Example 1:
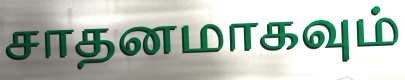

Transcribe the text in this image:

சாதனமாகவும்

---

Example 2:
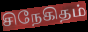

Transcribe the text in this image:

சிநேகிதம்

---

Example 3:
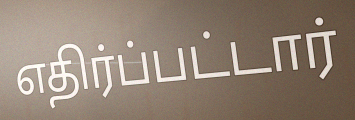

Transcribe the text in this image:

எதிர்ப்பட்டார்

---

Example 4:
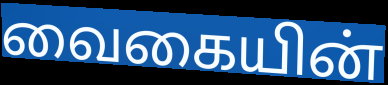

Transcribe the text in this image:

வைகையின்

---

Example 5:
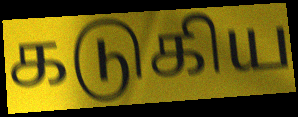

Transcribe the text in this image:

கடுகிய